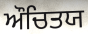
ਔਚਿਤਯ